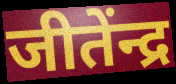
जीतेंन्द्र